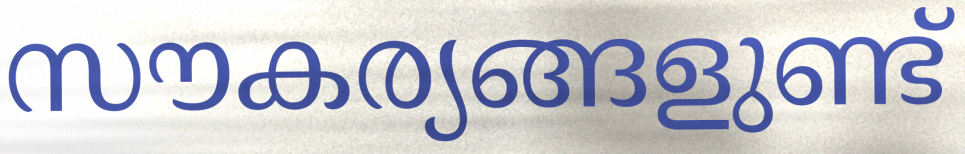
സൗകര്യങ്ങളുണ്ട്